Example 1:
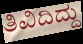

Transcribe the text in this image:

ತಿವಿದಿದ್ದು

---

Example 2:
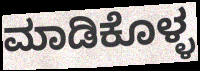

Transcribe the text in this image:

ಮಾಡಿಕೊಳ್ಳ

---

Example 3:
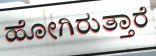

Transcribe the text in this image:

ಹೋಗಿರುತ್ತಾರೆ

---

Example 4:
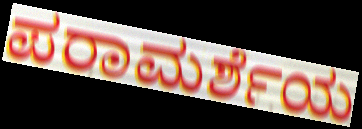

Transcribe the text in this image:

ಪರಾಮರ್ಶೆಯ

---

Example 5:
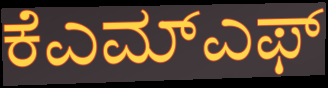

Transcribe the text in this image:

ಕೆಎಮ್ಎಫ್